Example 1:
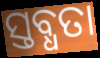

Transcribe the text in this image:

ସ୍ତବ୍ଧତା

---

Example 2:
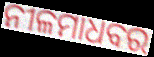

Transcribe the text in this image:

ନୀଳମାଧବର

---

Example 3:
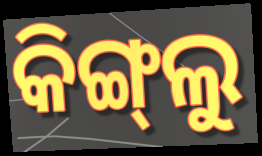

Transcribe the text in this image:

କିଙ୍ଗ୍‌ଲୁ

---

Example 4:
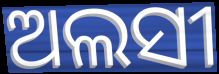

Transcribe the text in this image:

ଅଲସୀ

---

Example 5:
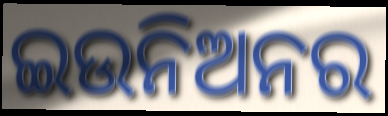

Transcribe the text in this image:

ଇଉନିଅନର